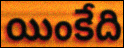
యింకేది